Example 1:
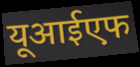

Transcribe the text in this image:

यूआईएफ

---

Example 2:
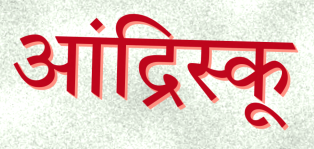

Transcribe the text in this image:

आंद्रिस्कू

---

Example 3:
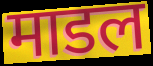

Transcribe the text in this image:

माडल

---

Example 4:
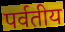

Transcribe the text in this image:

पर्वतीय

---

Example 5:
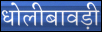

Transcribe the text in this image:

धोलीबावड़ी